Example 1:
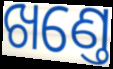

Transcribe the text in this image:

ଖଣ୍ତେ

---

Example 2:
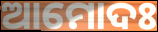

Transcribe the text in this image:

ଆମୋଦଃ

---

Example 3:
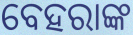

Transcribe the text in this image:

ବେହରାଙ୍କ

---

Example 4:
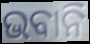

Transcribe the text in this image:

ଭବାନି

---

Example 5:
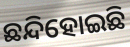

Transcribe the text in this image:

ଛନ୍ଦିହୋଇଛି